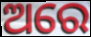
ଅରେ